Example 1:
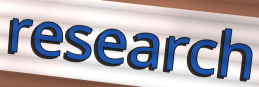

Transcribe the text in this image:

research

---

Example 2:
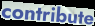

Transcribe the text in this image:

contribute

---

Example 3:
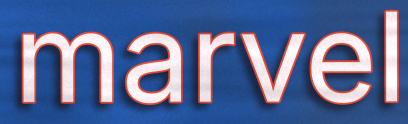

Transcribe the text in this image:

marvel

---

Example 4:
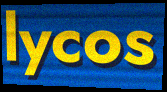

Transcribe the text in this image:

lycos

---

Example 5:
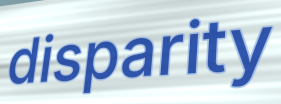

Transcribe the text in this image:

disparity